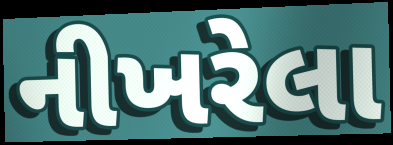
નીખરેલા